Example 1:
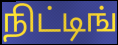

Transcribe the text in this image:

நிட்டிங்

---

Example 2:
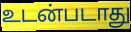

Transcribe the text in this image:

உடன்படாது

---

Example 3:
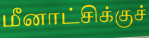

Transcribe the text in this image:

மீனாட்சிக்குச்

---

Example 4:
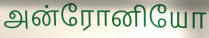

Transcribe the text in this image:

அன்ரோனியோ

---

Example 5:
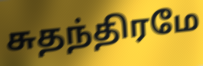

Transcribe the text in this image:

சுதந்திரமே